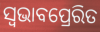
ସ୍ୱଭାବପ୍ରେରିତ